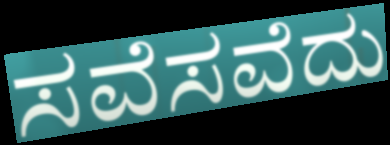
ಸವೆಸವೆದು